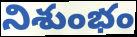
నిశుంభం